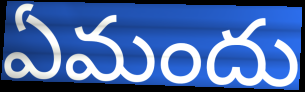
ఏమందు